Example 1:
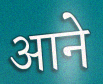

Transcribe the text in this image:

आने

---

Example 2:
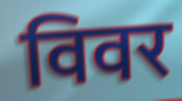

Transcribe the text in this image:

विवर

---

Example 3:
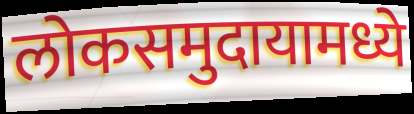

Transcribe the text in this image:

लोकसमुदायामध्ये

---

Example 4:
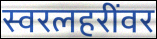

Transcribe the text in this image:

स्वरलहरींवर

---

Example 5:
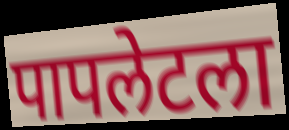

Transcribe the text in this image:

पापलेटला